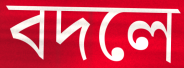
বদলে